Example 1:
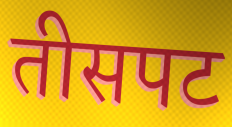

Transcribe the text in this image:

तीसपट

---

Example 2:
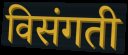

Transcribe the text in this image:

विसंगती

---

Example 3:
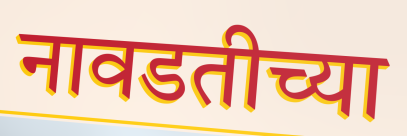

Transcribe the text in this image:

नावडतीच्या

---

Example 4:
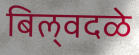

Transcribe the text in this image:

बिल्वदळे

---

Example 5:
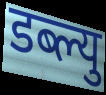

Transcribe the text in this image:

डब्ल्यु